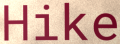
Hike